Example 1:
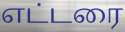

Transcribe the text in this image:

எட்டரை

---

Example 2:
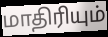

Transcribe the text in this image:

மாதிரியும்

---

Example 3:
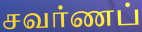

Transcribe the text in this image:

சவர்ணப்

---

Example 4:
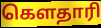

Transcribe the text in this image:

கௌதாரி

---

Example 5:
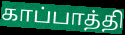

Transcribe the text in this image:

காப்பாத்தி